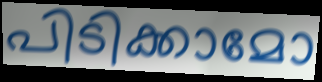
പിടിക്കാമോ